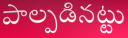
పాల్పడినట్టు